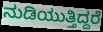
ನುಡಿಯುತ್ತಿದ್ದರೆ